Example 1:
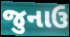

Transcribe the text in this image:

જુનાઉ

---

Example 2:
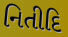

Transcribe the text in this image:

નિતીદિ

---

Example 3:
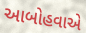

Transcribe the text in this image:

આબોહવાએ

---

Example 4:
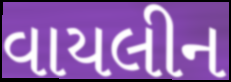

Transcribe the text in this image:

વાયલીન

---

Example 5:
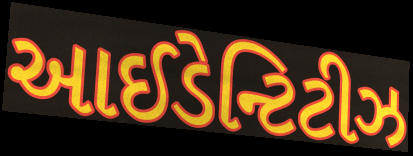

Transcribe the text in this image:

આઈડેન્ટિટીઝ